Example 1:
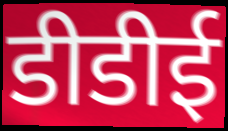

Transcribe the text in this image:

डीडीई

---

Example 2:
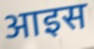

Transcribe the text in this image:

आइस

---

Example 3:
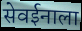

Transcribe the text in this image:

सेवईनाला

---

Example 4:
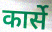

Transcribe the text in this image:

कार्से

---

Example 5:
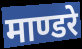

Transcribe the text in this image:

माण्डरे